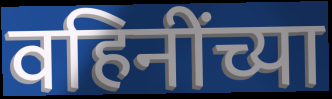
वहिनींच्या